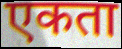
एकता